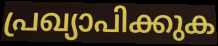
പ്രഖ്യാപിക്കുക